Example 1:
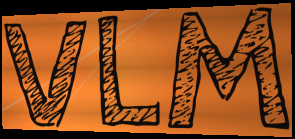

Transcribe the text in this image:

VLM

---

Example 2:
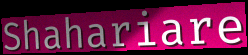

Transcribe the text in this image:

Shahariare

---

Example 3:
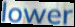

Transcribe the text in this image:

lower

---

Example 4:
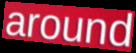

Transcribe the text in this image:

around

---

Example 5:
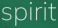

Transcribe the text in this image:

spirit